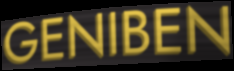
GENIBEN